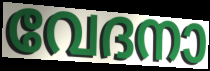
വേദനാ